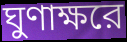
ঘুণাক্ষরে